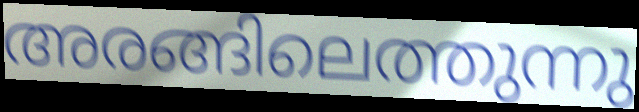
അരങ്ങിലെത്തുന്നു